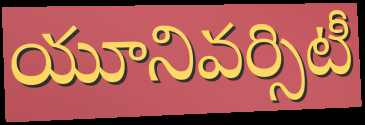
యూనివర్సిటీ